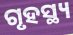
ଗୃହସ୍ଥ୍ୟ